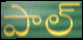
పాల్